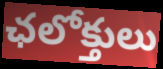
ఛలోక్తులు